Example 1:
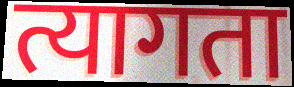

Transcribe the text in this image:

त्यागता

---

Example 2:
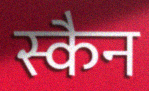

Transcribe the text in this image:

स्‍कैन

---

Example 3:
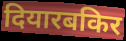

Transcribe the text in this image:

दियारबकिर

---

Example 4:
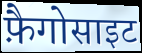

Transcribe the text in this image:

फ़ैगोसाइट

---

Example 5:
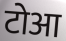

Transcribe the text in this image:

टोआ